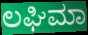
ಲಘಿಮಾ